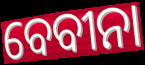
ବେବୀନା